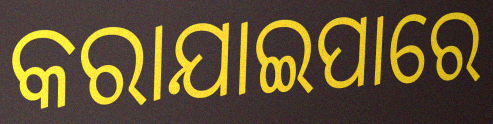
କରାଯାଇପାରେ